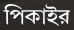
পিকাইর